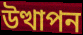
উত্থাপন